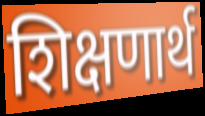
शिक्षणार्थ